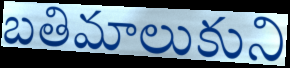
బతిమాలుకుని